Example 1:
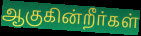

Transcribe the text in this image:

ஆகுகின்றீர்கள்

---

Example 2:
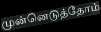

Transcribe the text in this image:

முன்னெடுத்தோம்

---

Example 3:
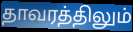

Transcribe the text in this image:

தாவரத்திலும்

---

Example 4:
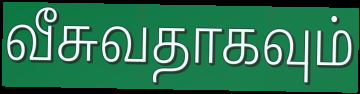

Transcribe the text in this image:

வீசுவதாகவும்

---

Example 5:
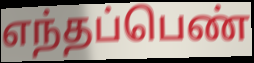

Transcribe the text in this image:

எந்தப்பெண்